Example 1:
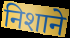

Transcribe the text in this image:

निशाने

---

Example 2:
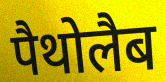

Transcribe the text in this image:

पैथोलैब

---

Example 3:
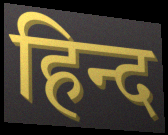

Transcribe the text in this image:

हिन्द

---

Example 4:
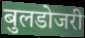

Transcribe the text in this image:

बुलडोजरी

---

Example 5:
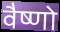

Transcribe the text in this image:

वैष्‍णो